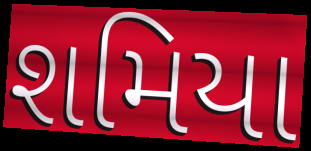
શમિયા